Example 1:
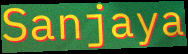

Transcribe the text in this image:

Sanjaya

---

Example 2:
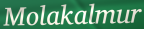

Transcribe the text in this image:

Molakalmur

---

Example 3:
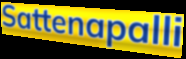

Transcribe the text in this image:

Sattenapalli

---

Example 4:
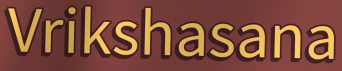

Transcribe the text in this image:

Vrikshasana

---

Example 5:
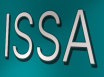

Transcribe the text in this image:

ISSA